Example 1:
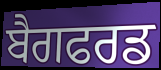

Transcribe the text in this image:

ਬੈਗਫਰਡ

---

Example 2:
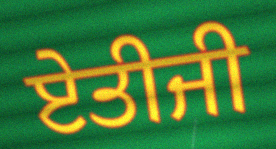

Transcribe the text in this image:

ਏਤੀਜੀ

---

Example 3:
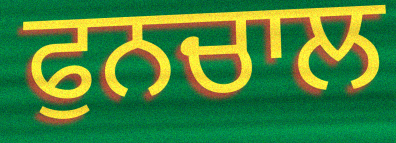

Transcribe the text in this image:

ਫੁਨਚਾਲ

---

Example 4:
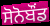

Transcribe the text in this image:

ਸੋਨੋਬੌਂਡ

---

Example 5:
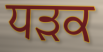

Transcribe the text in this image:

ਧੜਕ